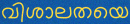
വിശാലതയെ